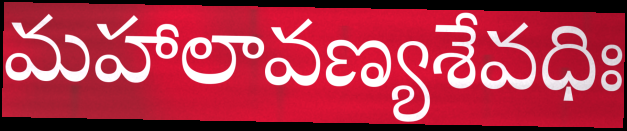
మహాలావణ్యశేవధిః